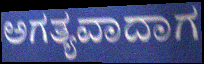
ಅಗತ್ಯವಾದಾಗ